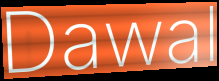
Dawal